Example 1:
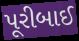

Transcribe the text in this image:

પૂરીબાઈ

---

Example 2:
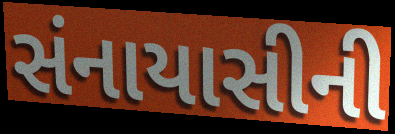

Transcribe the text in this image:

સંનાયાસીની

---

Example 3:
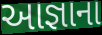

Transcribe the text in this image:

આજ્ઞાના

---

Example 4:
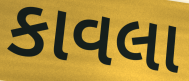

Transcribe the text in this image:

કાવલા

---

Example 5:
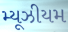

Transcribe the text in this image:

મ્યૂઝીયમ